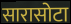
सारासोटा